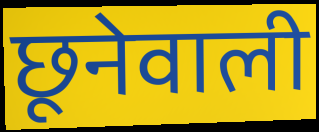
छूनेवाली